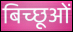
बिच्छूओं